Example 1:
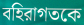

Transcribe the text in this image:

বহিরাগতকে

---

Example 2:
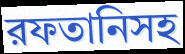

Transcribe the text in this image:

রফতানিসহ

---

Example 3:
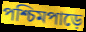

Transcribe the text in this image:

পশ্চিমপাড়ে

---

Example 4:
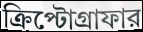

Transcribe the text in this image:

ক্রিপ্টোগ্রাফার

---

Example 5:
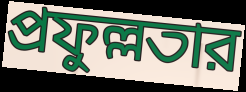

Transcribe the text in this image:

প্রফুল্লতার